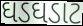
ઘડઘડાટ